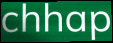
chhap